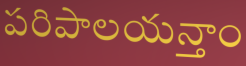
పరిపాలయన్తాం